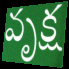
వృక్ష